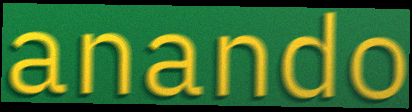
anando